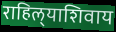
राहिल्याशिवाय